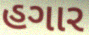
હગાર